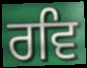
ਰਵਿ